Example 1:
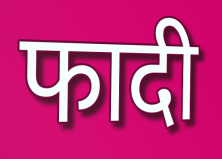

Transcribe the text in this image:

फादी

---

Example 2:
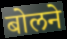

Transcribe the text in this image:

बोलने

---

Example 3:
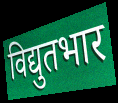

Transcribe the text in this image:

विद्युतभार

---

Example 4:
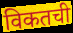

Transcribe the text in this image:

विकतची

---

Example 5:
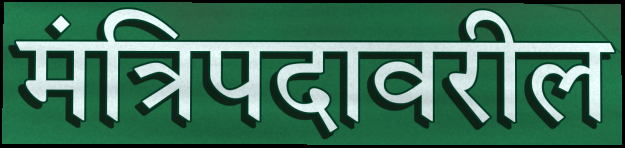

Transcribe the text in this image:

मंत्रिपदावरील